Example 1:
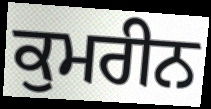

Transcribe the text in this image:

ਕੁਮਰੀਨ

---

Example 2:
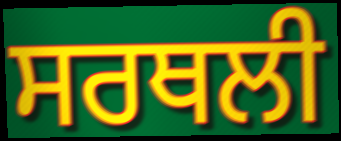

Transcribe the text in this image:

ਸਰਥਲੀ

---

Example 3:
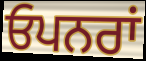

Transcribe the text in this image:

ਓਪਨਰਾਂ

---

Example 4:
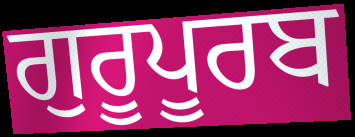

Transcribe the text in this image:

ਗੁਰੂਪੂਰਬ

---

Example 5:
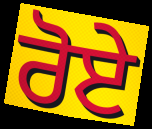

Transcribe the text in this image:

ਰੋਏ